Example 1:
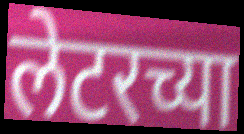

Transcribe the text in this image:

लेटरच्या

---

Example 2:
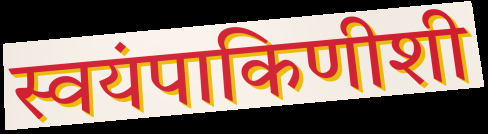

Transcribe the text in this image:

स्वयंपाकिणीशी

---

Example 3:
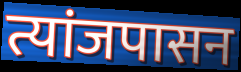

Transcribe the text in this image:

त्यांजपासन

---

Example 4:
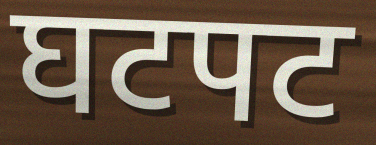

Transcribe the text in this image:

घटपट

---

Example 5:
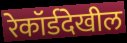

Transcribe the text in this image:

रेकॉर्डदेखील